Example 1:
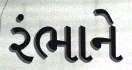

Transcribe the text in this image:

રંભાને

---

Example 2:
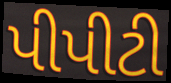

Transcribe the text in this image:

પીપીટી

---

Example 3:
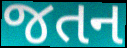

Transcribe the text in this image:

જતન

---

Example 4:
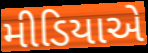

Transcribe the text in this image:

મીડિયાએ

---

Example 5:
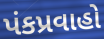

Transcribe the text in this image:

પંકપ્રવાહો